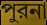
পুরনা